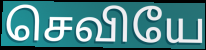
செவியே